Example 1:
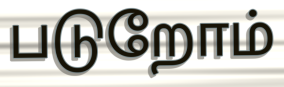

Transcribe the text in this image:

படுறோம்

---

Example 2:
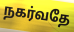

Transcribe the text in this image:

நகர்வதே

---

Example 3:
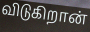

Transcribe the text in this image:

விடுகிறான்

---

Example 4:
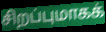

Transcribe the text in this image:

சிறப்புமாகக்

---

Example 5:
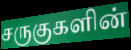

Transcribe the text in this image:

சருகுகளின்